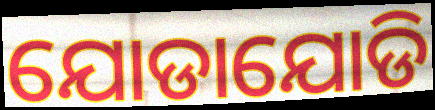
ଯୋଡାଯୋଡି